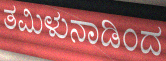
ತಮಿಳುನಾಡಿಂದ